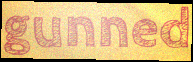
gunned